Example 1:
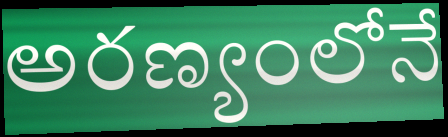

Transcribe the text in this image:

అరణ్యంలోనే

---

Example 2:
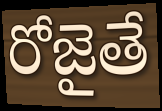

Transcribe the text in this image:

రోజైతే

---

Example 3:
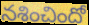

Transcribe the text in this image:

నశించిందో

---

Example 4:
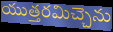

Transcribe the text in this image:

యుత్తరమిచ్చెను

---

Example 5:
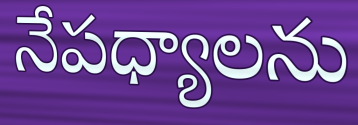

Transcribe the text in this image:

నేపధ్యాలను